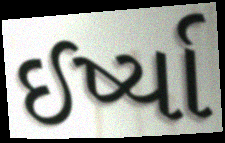
ઈર્ષ્યા